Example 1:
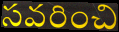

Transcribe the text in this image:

సవరించి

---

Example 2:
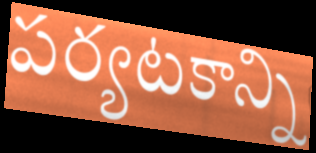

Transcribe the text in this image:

పర్యటకాన్ని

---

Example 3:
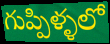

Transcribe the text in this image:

గుప్పిళ్ళలో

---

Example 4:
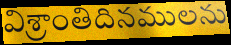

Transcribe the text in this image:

విశ్రాంతిదినములను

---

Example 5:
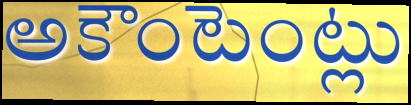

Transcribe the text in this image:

అకౌంటెంట్లు